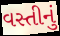
વસ્તીનું